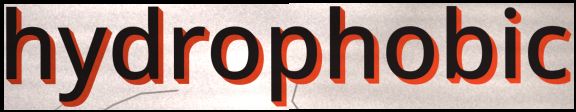
hydrophobic